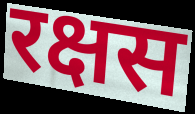
रक्षस